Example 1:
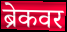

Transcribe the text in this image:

ब्रेकवर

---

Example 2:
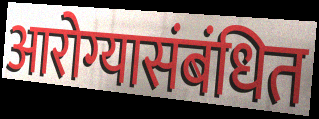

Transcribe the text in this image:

आरोग्यासंबंधित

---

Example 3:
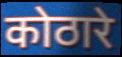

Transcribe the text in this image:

कोठारे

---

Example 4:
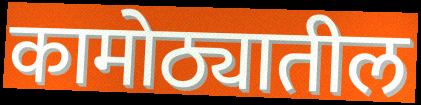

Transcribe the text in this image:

कामोठ्यातील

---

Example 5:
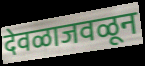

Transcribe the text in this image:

देवळाजवळून